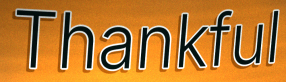
Thankful